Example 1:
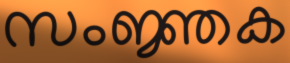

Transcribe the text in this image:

സംജ്ഞക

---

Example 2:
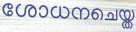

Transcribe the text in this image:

ശോധനചെയ്ത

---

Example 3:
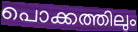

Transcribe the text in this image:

പൊക്കത്തിലും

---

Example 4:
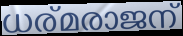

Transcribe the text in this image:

ധര്മരാജന്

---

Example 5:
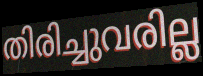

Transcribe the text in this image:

തിരിച്ചുവരില്ല